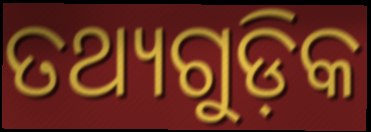
ତଥ୍ୟଗୁଡ଼ିକ